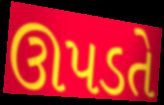
ઊપડતે